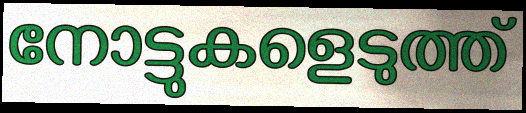
നോട്ടുകളെടുത്ത്